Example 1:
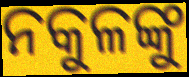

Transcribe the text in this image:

ନକୁଳଙ୍କୁ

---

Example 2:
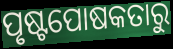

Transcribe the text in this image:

ପୃଷ୍ଟପୋଷକତାରୁ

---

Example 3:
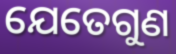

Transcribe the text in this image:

ଯେତେଗୁଣ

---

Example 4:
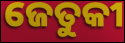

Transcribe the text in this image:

ଜେତୁକୀ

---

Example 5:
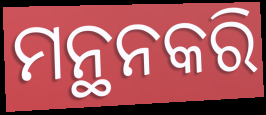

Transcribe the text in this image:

ମନ୍ଥନକରି